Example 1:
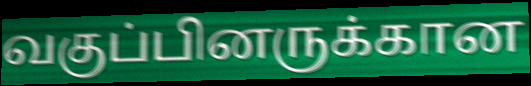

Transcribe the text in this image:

வகுப்பினருக்கான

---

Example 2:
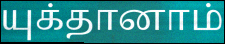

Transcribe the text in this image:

யுக்தானாம்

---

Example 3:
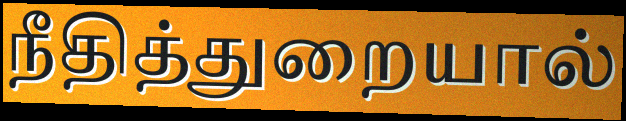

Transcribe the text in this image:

நீதித்துறையால்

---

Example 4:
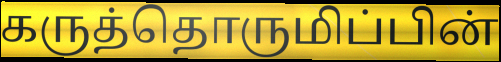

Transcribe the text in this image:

கருத்தொருமிப்பின்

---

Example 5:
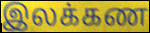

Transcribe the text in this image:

இலக்கண